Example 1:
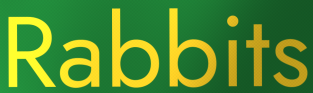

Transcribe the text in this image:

Rabbits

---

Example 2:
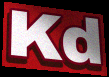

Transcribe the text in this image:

Kd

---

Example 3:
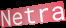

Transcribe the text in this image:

Netra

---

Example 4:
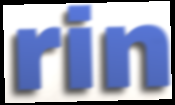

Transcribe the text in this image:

rin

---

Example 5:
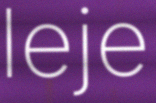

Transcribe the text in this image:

leje